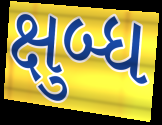
ક્ષુબ્ધ